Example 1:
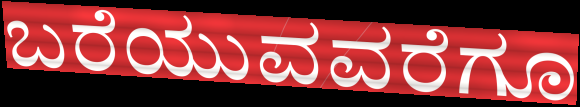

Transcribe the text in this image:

ಬರೆಯುವವರೆಗೂ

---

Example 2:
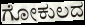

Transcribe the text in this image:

ಗೋಕುಲದ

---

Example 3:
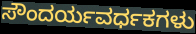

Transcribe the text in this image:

ಸೌಂದರ್ಯವರ್ಧಕಗಳು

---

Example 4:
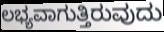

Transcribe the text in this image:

ಲಭ್ಯವಾಗುತ್ತಿರುವುದು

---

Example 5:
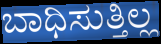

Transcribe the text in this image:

ಬಾಧಿಸುತ್ತಿಲ್ಲ